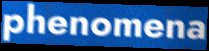
phenomena